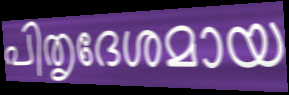
പിതൃദേശമായ